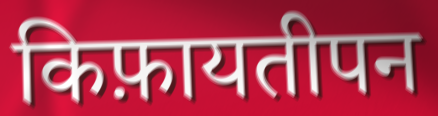
किफ़ायतीपन